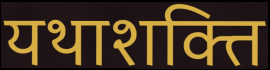
यथाशक्ति